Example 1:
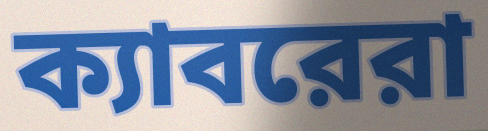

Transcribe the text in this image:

ক্যাবরেরা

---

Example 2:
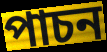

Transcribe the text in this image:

পাচন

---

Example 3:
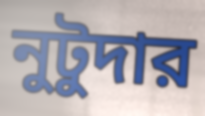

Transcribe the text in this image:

নুটুদার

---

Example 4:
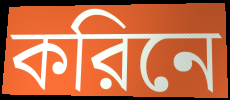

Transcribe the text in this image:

করিনে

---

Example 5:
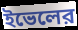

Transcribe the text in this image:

ইভেলের